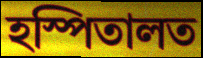
হস্পিতালত